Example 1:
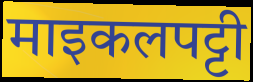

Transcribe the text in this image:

माइकलपट्टी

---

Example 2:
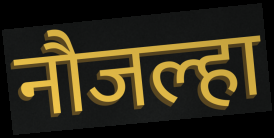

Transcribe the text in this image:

नौजल्हा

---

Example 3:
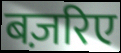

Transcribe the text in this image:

बज़रिए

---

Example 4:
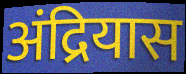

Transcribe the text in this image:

अंद्रियास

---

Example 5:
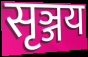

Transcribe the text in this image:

सृञ्जय